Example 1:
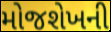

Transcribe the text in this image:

મોજશેખની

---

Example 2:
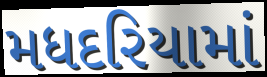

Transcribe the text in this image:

મધદરિયામાં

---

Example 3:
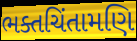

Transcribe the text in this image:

ભક્તચિંતામણિ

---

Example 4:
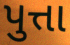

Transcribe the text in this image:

પુત્તા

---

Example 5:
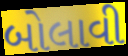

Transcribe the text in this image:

બોલાવી